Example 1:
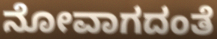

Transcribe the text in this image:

ನೋವಾಗದಂತೆ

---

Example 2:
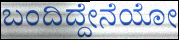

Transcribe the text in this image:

ಬಂದಿದ್ದೇನೆಯೋ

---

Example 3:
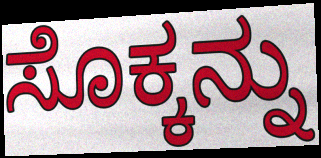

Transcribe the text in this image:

ಸೊಕ್ಕನ್ನು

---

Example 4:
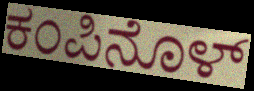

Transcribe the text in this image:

ಕಂಪಿನೊಳ್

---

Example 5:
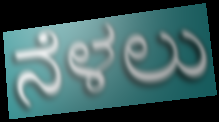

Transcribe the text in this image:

ನೆಳಲು